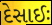
દેસાઈઃ